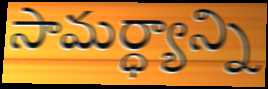
సామర్ధ్యాన్ని